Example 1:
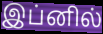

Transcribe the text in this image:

இப்னில்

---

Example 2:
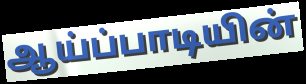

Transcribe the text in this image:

ஆய்ப்பாடியின்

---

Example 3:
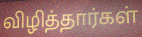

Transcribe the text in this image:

விழித்தார்கள்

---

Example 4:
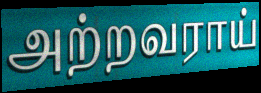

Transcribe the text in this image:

அற்றவராய்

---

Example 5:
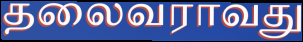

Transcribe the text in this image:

தலைவராவது